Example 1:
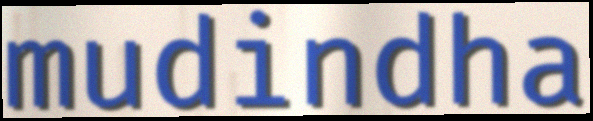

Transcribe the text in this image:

mudindha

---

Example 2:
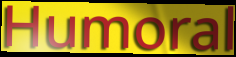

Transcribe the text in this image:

Humoral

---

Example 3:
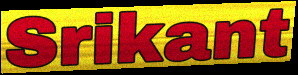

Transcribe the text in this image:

Srikant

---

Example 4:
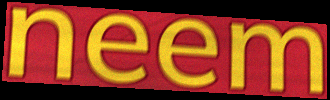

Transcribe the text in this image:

neem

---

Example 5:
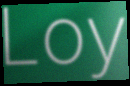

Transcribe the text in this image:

Loy